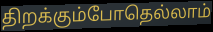
திறக்கும்போதெல்லாம்